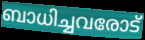
ബാധിച്ചവരോട്